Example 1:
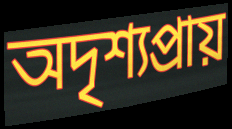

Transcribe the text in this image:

অদৃশ্যপ্ৰায়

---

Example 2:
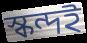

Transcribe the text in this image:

স্কন্দই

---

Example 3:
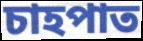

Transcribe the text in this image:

চাহপাত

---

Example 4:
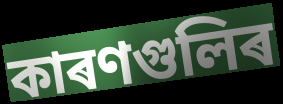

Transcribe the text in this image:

কাৰণগুলিৰ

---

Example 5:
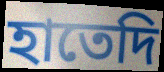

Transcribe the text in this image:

হাতেদি